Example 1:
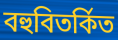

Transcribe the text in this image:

বহুবিতর্কিত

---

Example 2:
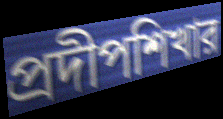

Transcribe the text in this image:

প্রদীপশিখার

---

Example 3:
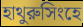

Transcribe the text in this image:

হাথুরুসিংহে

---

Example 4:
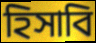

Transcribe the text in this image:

হিসাবি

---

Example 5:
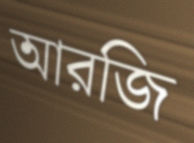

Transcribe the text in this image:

আরজি